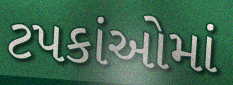
ટપકાંઓમાં